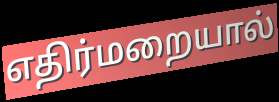
எதிர்மறையால்